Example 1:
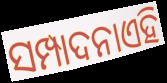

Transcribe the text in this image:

ସମ୍ପାଦନାଏହି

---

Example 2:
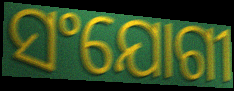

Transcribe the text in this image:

ସଂଯୋଗୀ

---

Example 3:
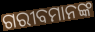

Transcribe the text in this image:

ଗରୀବମାନଙ୍କ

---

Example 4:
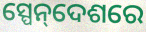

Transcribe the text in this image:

ସ୍ପେନ୍‌ଦେଶରେ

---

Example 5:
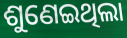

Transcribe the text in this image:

ଶୁଣେଇଥିଲା